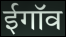
ईगॉव